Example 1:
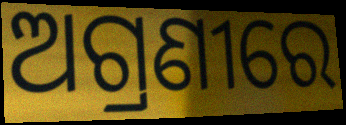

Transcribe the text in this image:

ଅଗ୍ରଣୀରେ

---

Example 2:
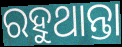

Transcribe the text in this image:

ରହୁଥାନ୍ତା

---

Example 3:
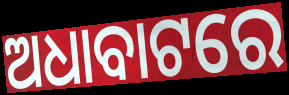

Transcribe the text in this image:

ଅଧାବାଟରେ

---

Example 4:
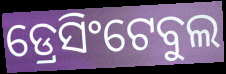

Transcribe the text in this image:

ଡ୍ରେସିଂଟେବୁଲ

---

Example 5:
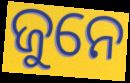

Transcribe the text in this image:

ଜୁନେ